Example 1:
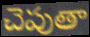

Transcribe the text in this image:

చెపుతా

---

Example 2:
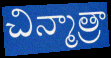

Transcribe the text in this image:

చిన్మాత్రా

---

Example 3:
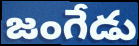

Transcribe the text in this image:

జంగేడు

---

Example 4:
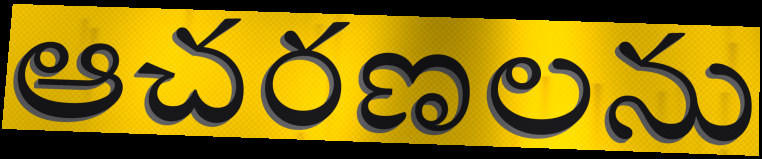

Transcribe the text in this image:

ఆచరణలను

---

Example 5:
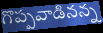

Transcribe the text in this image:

గొప్పవాడినన్న